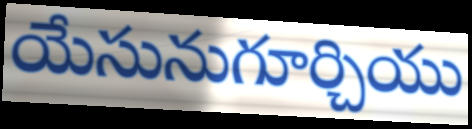
యేసునుగూర్చియు